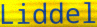
Liddel